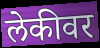
लेकीवर